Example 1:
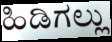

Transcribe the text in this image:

ಹಿಡಿಗಲ್ಲು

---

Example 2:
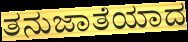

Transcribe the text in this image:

ತನುಜಾತೆಯಾದ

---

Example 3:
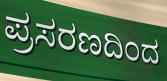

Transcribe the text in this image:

ಪ್ರಸರಣದಿಂದ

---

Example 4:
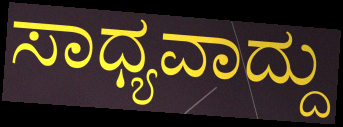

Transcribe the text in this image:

ಸಾಧ್ಯವಾದ್ದು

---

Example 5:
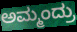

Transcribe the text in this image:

ಅಮ್ಮಂದ್ರು